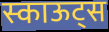
स्काऊट्स